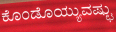
ಕೊಂಡೊಯ್ಯುವಷ್ಟು